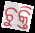
ଚୁକ୍ତି